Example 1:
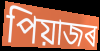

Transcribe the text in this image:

পিয়াজৰ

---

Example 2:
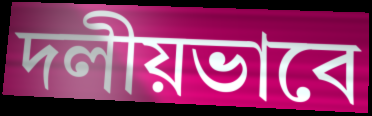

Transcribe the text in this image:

দলীয়ভাবে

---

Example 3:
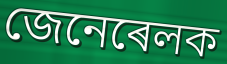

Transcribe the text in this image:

জেনেৰেলক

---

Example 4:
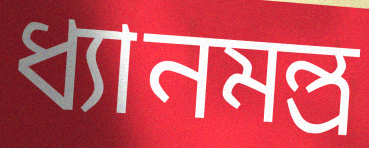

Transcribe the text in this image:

ধ্যানমন্ত্ৰ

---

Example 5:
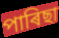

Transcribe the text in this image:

পাৰিছা